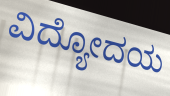
ವಿದ್ಯೋದಯ